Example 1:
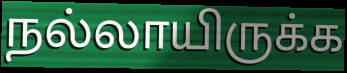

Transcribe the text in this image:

நல்லாயிருக்க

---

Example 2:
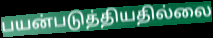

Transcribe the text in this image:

பயன்படுத்தியதில்லை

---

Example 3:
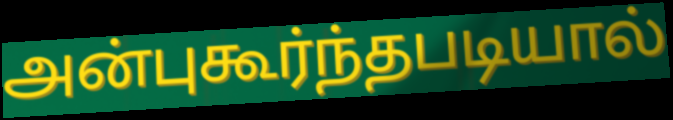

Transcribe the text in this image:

அன்புகூர்ந்தபடியால்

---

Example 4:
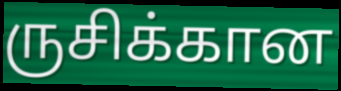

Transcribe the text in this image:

ருசிக்கான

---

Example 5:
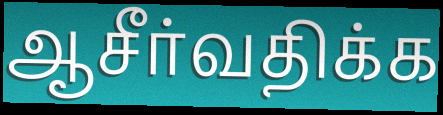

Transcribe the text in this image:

ஆசீர்வதிக்க